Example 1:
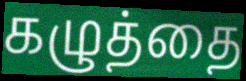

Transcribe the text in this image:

கழுத்தை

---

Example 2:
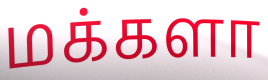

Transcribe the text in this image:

மக்களா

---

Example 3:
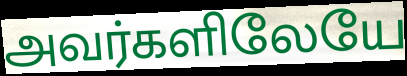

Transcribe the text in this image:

அவர்களிலேயே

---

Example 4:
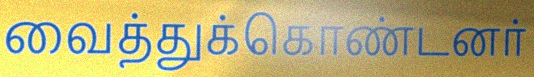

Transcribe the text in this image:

வைத்துக்கொண்டனர்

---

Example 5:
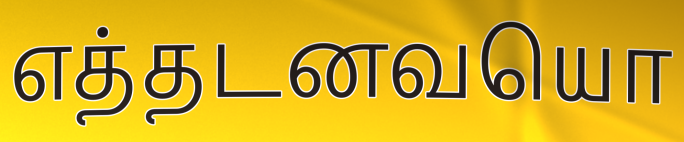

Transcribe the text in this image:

எத்தடனவயொ